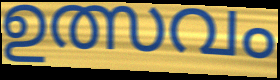
ഉത്സവം